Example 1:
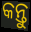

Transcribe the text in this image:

କନ୍ତୁ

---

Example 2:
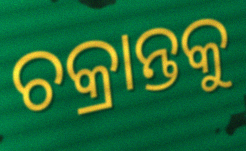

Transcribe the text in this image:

ଚକ୍ରାନ୍ତକୁ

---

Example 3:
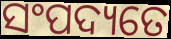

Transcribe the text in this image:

ସଂପଦ୍ୟତେ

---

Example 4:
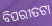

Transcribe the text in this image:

ବିପରୀତଟା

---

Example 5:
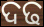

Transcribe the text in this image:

ଦଢ